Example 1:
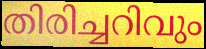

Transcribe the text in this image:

തിരിച്ചറിവും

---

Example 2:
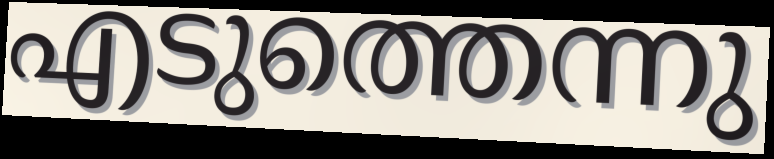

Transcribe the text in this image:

എടുത്തെന്നു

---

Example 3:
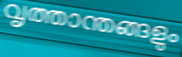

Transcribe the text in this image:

വൃത്താന്തങ്ങളും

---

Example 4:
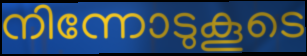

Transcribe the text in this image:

നിന്നോടുകൂടെ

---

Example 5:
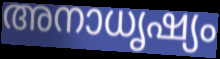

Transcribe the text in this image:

അനാധൃഷ്യം